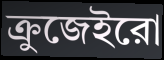
ক্রুজেইরো